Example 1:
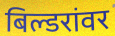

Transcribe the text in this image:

बिल्डरांवर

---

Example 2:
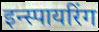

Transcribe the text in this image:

इन्स्पायरिंग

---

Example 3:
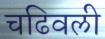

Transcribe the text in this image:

चढिवली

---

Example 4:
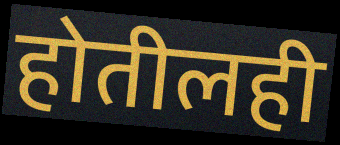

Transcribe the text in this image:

होतीलही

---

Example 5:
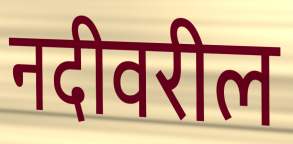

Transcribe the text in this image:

नदीवरील